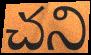
చని